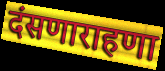
दंसणाराहणा